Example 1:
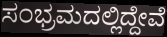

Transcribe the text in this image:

ಸಂಭ್ರಮದಲ್ಲಿದ್ದೇವೆ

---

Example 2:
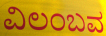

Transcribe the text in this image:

ವಿಲಂಬವ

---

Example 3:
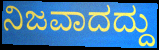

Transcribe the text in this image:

ನಿಜವಾದದ್ದು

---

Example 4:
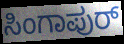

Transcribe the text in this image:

ಸಿಂಗಾಪುರ್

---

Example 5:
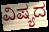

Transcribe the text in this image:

ವಿಷ್ಯದ